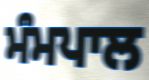
ਮੰਮਪਾਲ